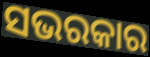
ସଭରକାର